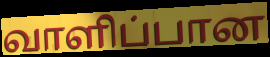
வாளிப்பான